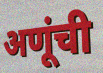
अणूंची